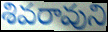
శివరావుని